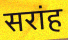
सरांह